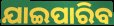
ଯାଇପାରିବ